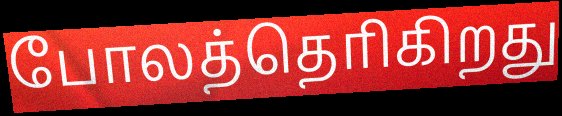
போலத்தெரிகிறது